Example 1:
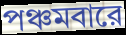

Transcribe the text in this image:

পঞ্চমবারে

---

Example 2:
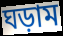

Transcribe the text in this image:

ঘড়াম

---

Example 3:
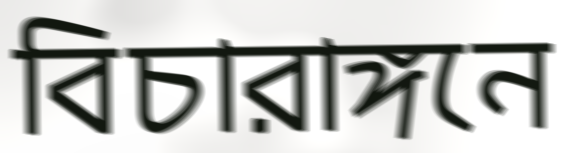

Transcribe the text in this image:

বিচারাঙ্গনে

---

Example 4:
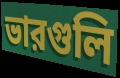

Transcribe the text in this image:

ভারগুলি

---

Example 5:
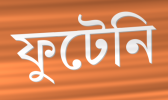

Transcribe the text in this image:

ফুটেনি